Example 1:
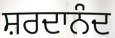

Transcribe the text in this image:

ਸ਼ਰਦਾਨੰਦ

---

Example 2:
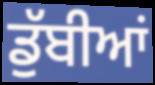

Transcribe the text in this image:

ਡੁੱਬੀਆਂ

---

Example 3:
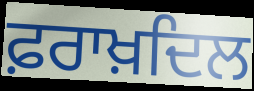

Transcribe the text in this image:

ਫ਼ਰਾਖ਼ਦਿਲ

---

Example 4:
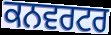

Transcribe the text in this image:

ਕਨਵਰਟਰ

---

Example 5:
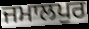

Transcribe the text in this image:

ਜਮਾਲਪੁਰ